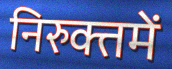
निरुक्तमें